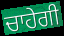
ਚਾਹੇਗੀ